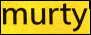
murty